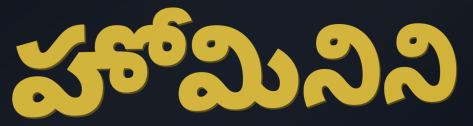
హోమినిని